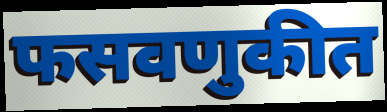
फसवणुकीत